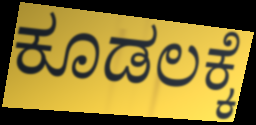
ಕೂಡಲಕ್ಕೆ